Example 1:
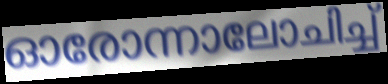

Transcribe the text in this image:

ഓരോന്നാലോചിച്ച്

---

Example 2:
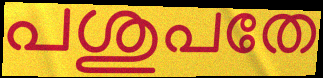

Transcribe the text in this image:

പശുപതേ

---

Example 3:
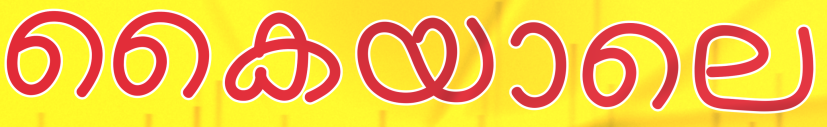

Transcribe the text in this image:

കൈയാലെ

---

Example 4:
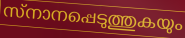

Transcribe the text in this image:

സ്‌നാനപ്പെടുത്തുകയും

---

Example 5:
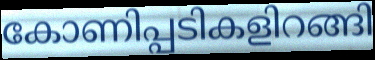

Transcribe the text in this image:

കോണിപ്പടികളിറങ്ങി